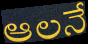
ఆలనే